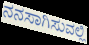
ನನಸಾಗಿಸುವಲ್ಲಿ